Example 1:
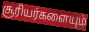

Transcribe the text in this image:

சூரியர்களையும்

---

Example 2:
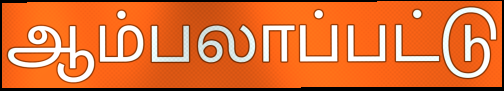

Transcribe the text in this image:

ஆம்பலாப்பட்டு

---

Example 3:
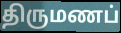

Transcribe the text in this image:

திருமணப்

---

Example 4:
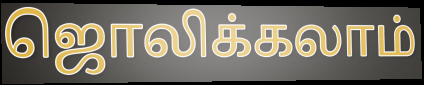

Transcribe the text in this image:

ஜொலிக்கலாம்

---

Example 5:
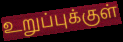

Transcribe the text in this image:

உறுப்புக்குள்